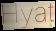
Hyat